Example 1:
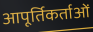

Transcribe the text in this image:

आपूर्तिकर्ताओं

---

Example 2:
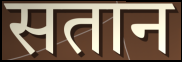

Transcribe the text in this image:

सतान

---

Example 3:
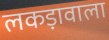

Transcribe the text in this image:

लकड़ावाला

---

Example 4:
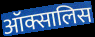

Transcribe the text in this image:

ऑक्सालिस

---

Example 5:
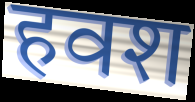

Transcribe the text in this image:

हवश